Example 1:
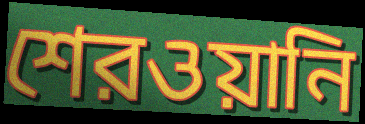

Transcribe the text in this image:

শেরওয়ানি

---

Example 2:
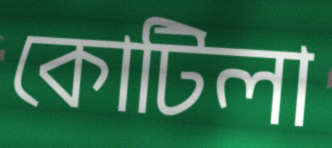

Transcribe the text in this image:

কোটিলা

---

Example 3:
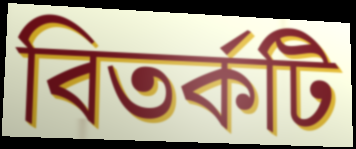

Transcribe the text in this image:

বিতর্কটি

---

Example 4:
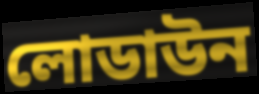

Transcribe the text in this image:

লোডাউন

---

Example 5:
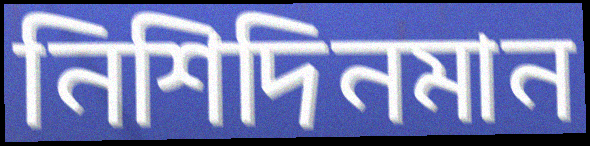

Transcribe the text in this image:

নিশিদিনমান